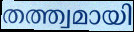
തത്ത്വമായി